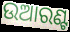
ଉଆରଣ୍ଟ